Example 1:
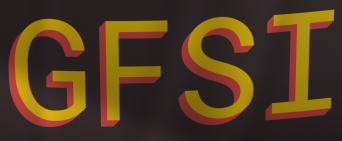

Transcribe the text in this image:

GFSI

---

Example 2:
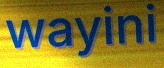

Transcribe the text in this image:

wayini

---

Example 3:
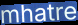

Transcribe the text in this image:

mhatre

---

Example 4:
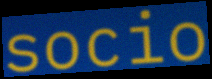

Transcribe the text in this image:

socio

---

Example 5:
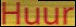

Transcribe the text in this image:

Huur